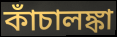
কাঁচালঙ্কা